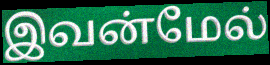
இவன்மேல்